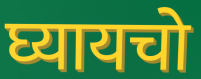
घ्यायचो